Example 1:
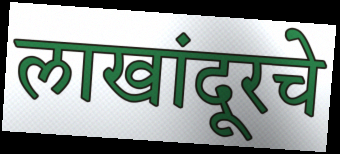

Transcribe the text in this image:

लाखांदूरचे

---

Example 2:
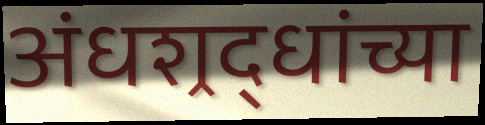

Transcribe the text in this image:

अंधश्रद्धांच्या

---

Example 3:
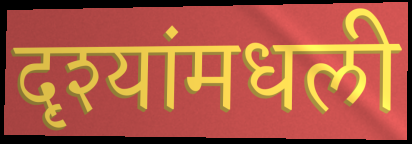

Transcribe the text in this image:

दृश्यांमधली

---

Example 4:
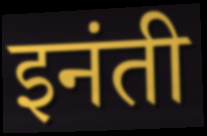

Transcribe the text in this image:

इनंती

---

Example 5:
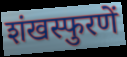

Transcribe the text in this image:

शंखस्फुरणें